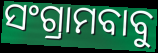
ସଂଗ୍ରାମବାବୁ